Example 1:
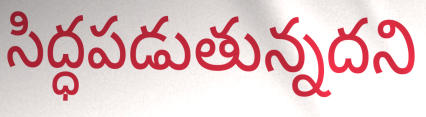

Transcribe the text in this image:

సిద్ధపడుతున్నదని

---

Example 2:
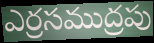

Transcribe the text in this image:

ఎర్రసముద్రపు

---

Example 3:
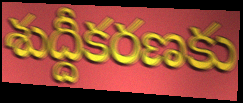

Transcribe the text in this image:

శుద్దీకరణకు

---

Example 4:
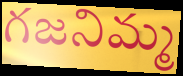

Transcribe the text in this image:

గజనిమ్మ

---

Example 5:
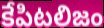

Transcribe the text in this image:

కేపిటలిజం